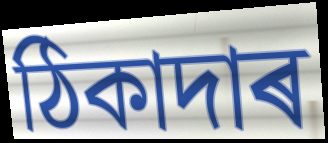
ঠিকাদাৰ